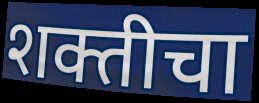
शक्‍तीचा